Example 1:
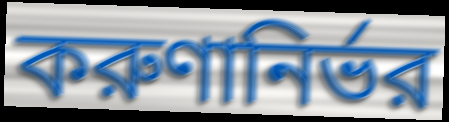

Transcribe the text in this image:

করুণানির্ভর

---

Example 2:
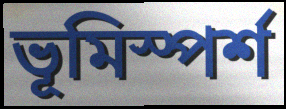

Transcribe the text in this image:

ভূমিস্পর্শ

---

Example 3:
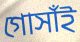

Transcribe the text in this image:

গোসাঁই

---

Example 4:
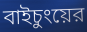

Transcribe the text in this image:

বাইচুংয়ের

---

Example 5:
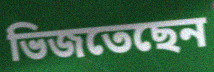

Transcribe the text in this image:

ভিজতেছেন